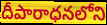
దీపారాధనలోని